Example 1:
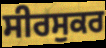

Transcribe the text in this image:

ਸੀਰਸੁਕਰ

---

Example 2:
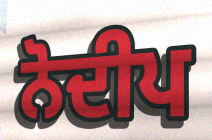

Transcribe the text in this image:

ਨੋਦੀਪ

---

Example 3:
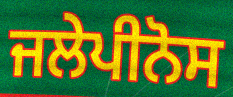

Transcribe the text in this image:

ਜਲੇਪੀਨੋਸ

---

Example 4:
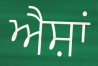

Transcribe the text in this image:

ਐਸ਼ਾਂ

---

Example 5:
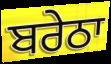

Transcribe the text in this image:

ਬਰੇਠਾ